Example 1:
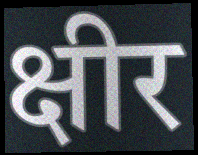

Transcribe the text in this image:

क्षीर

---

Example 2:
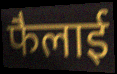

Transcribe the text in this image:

फैलाई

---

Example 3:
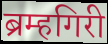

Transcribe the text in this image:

ब्रम्हगिरी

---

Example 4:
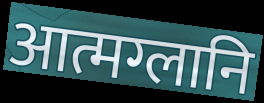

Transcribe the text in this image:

आत्मग्लानि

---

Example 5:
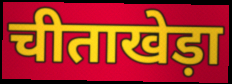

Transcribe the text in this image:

चीताखेड़ा